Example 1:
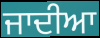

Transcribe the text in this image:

ਜਾਦੀਆ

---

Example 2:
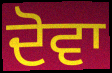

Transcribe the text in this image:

ਦੋਵਾ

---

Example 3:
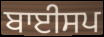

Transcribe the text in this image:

ਬਾਈਸਪ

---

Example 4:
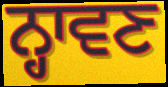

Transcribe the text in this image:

ਨ੍ਹਾਵਣ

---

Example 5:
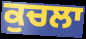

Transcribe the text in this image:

ਕੁਚਲਾ